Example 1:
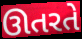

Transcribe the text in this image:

ઊતરતે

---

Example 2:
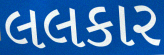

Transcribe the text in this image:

લલકાર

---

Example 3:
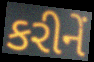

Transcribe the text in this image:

કરીનેં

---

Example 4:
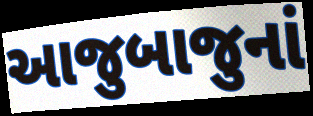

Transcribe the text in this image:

આજુબાજુનાં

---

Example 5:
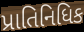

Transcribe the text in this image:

પ્રાતિનિધિક